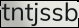
tntjssb